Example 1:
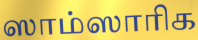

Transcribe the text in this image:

ஸாம்ஸாரிக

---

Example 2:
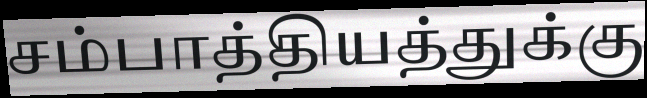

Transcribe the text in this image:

சம்பாத்தியத்துக்கு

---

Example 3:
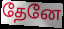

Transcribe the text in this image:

தேனே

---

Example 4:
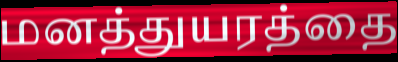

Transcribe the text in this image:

மனத்துயரத்தை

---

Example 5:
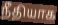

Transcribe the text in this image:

நீதியாக